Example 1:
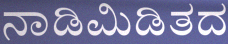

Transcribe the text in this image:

ನಾಡಿಮಿಡಿತದ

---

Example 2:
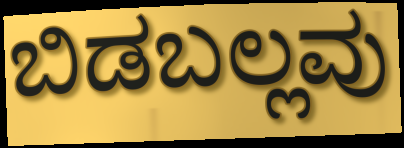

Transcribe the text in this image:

ಬಿಡಬಲ್ಲವು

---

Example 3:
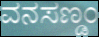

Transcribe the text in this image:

ವನಸಣ್ಡಂ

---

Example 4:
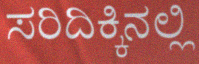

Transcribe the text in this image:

ಸರಿದಿಕ್ಕಿನಲ್ಲಿ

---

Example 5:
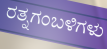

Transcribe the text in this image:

ರತ್ನಗಂಬಳಿಗಳು